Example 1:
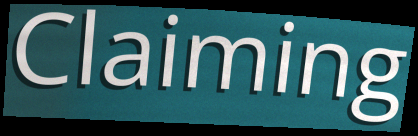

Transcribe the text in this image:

Claiming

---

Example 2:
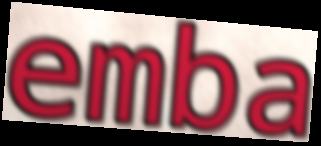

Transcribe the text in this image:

emba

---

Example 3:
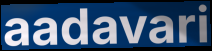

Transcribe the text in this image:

aadavari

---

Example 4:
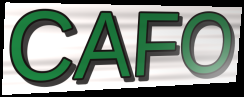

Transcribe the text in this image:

CAFO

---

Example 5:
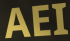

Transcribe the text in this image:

AEI